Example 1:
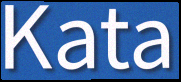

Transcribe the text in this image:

Kata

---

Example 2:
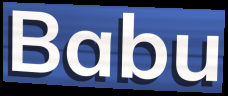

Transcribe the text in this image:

Babu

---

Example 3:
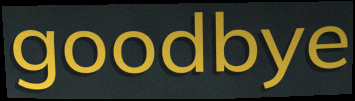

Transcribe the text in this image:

goodbye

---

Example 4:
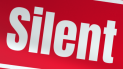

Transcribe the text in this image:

Silent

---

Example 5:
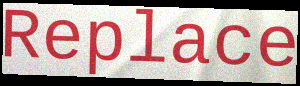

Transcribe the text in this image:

Replace